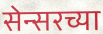
सेन्सरच्या